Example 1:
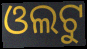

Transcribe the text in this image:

ଓଲଟୁ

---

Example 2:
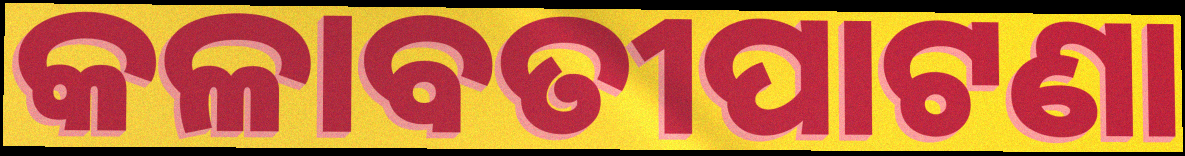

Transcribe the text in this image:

କଳାବତୀପାଟଣା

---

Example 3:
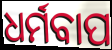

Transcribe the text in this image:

ଧର୍ମବାପ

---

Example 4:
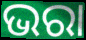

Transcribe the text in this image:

ଭରା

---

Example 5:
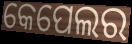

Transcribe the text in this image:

କେପେଲର